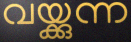
വയ്ക്കുന്ന